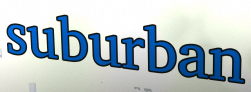
suburban